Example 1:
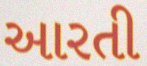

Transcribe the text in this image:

આરતી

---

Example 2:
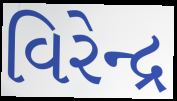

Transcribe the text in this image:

વિરેન્દ્ર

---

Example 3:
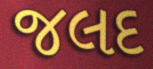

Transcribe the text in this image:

જલદ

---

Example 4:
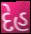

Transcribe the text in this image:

દેહ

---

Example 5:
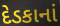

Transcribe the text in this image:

દેડકાનાં